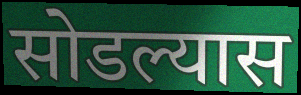
सोडल्यास